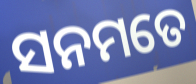
ସନମତେ